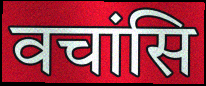
वचांसि